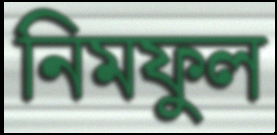
নিমফুল